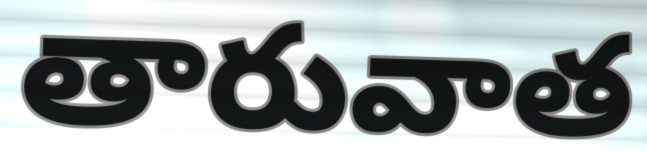
తారువాత